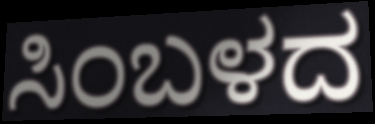
ಸಿಂಬಳದ